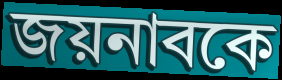
জয়নাবকে